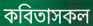
কবিতাসকল